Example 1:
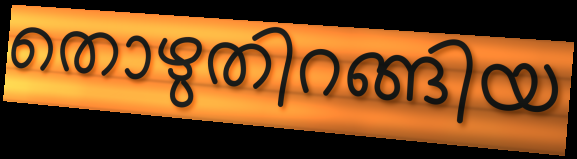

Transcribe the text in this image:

തൊഴുതിറങ്ങിയ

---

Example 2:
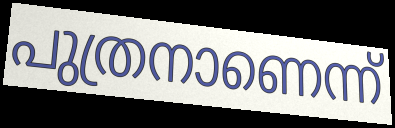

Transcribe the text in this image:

പുത്രനാണെന്ന്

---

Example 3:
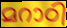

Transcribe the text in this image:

മറാഠി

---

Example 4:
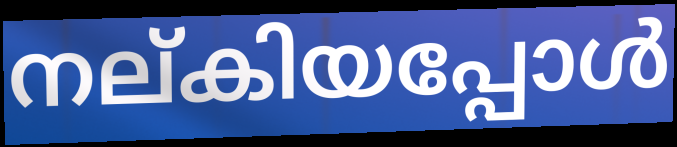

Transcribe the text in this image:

നല്കിയപ്പോൾ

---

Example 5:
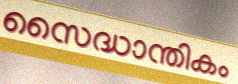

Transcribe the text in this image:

സൈദ്ധാന്തികം